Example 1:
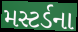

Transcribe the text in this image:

મસ્ટર્ડના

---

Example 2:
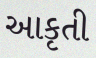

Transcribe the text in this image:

આકૃતી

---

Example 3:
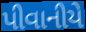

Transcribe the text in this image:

પીવાનીયે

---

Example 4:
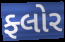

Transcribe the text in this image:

ફ્લોર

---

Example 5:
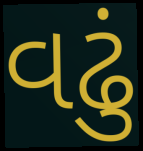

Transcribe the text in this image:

વઢું